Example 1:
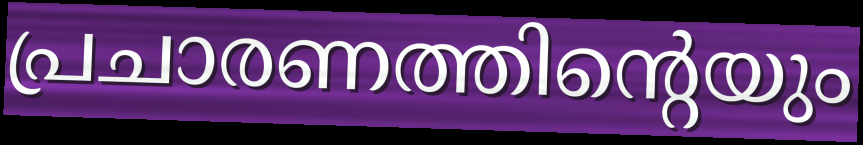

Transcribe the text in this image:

പ്രചാരണത്തിന്റെയും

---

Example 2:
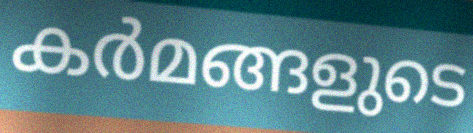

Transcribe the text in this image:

കർമങ്ങളുടെ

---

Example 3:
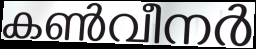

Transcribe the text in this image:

കൺവീനർ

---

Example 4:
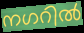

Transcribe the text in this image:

നഗറിൽ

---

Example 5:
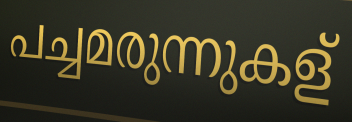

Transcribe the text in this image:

പച്ചമരുന്നുകള്